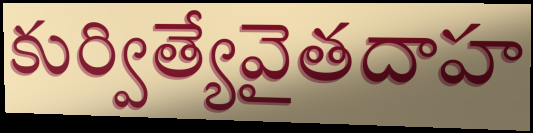
కుర్విత్యేవైతదాహ